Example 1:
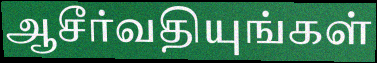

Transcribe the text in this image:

ஆசீர்வதியுங்கள்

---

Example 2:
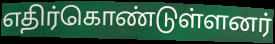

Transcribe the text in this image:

எதிர்கொண்டுள்ளனர்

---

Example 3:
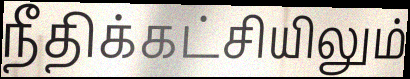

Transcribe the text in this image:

நீதிக்கட்சியிலும்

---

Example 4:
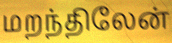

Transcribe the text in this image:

மறந்திலேன்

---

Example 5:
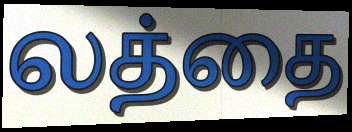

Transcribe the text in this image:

லத்தை